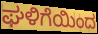
ಘಳಿಗೆಯಿಂದ